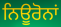
ਨਿਊਰੋਨਾਂ